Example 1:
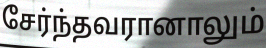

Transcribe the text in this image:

சேர்ந்தவரானாலும்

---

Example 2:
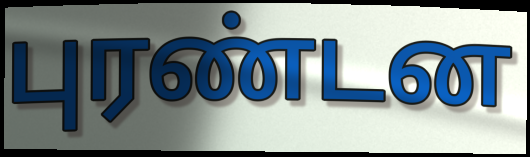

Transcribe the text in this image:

புரண்டன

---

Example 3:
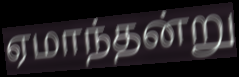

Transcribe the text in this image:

ஏமாந்தன்று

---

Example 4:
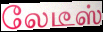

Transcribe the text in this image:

லேடீஸ்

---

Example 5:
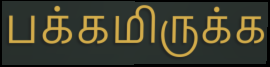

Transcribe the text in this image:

பக்கமிருக்க